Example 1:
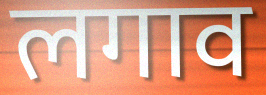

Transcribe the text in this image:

लगाव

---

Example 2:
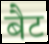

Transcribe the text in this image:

बैट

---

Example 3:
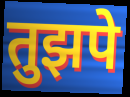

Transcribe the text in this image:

तुझपे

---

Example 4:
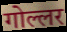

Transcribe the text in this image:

गोल्लर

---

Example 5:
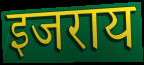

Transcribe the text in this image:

इजराय